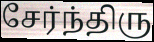
சேர்ந்திரு